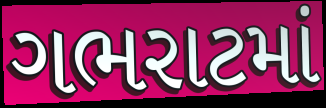
ગભરાટમાં